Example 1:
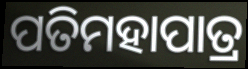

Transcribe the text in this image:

ପତିମହାପାତ୍ର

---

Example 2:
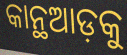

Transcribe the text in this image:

କାନ୍ଥଆଡ଼କୁ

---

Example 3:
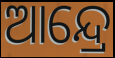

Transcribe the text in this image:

ଆନ୍ଦ୍ରେ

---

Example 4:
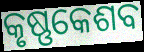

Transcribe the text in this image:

କୃଷ୍ଣକେଶବ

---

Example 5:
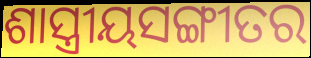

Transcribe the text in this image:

ଶାସ୍ତ୍ରୀୟସଙ୍ଗୀତର